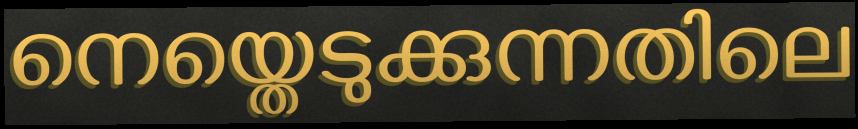
നെയ്തെടുക്കുന്നതിലെ